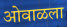
ओवाळला